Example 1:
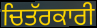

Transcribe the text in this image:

ਚਿਤੱਰਕਾਰੀ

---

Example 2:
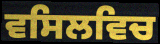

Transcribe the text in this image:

ਵਸਿਲਵਿਚ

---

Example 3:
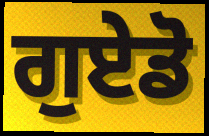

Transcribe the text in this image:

ਗੁਏਡੋ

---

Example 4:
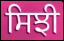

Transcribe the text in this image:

ਸਿਝੀ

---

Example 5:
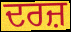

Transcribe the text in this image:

ਦਰਜ਼